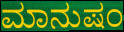
ಮಾನುಷಂ